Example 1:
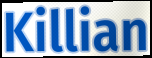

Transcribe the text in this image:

Killian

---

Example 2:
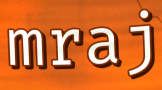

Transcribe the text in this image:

mraj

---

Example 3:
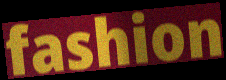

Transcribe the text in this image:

fashion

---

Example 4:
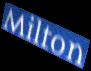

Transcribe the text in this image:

Milton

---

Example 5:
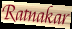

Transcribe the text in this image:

Ratnakar